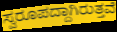
ಸ್ವರೂಪದ್ದಾಗಿರುತ್ತವೆ